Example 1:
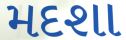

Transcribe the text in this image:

મદશા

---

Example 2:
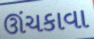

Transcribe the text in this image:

ઊંચકાવા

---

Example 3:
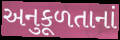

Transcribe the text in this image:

અનુકૂળતાનાં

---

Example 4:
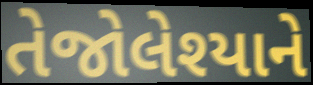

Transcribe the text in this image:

તેજોલેશ્યાને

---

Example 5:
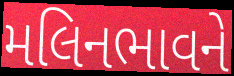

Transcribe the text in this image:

મલિનભાવને